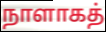
நாளாகத்